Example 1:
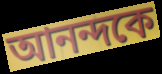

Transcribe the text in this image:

আনন্দকে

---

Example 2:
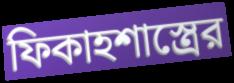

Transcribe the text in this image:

ফিকাহশাস্ত্রের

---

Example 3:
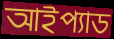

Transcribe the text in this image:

আইপ্যাড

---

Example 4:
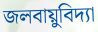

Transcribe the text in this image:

জলবায়ুবিদ্যা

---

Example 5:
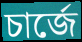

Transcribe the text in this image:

চার্জে